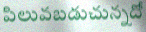
పిలువబడుచున్నదో